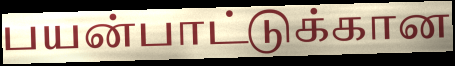
பயன்பாட்டுக்கான